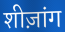
शीज़ांग